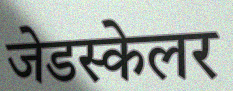
जेडस्केलर